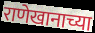
राणेखानाच्या